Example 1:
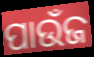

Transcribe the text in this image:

ପାଉଁଜ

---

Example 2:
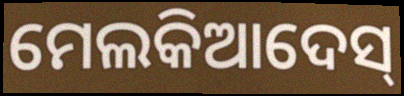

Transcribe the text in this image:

ମେଲକିଆଦେସ୍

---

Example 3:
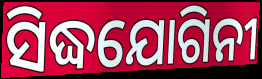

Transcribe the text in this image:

ସିଦ୍ଧଯୋଗିନୀ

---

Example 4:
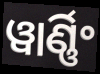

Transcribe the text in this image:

ୱାର୍ଣ୍ଣିଂ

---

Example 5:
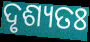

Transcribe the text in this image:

ଦୃଶ୍ୟତଃ